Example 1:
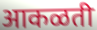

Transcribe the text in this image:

आकळती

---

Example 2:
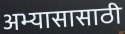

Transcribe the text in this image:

अभ्यासासाठी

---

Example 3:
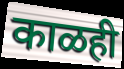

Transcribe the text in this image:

काळही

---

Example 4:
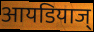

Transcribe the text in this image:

आयडियाज्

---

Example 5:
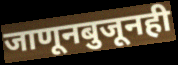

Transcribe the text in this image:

जाणूनबुजूनही